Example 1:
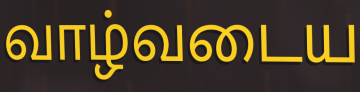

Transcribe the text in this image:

வாழ்வடைய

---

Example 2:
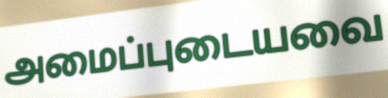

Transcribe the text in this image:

அமைப்புடையவை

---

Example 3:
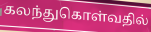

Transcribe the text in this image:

கலந்துகொள்வதில்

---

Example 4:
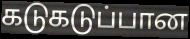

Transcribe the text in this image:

கடுகடுப்பான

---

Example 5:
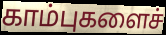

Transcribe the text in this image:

காம்புகளைச்